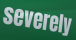
severely